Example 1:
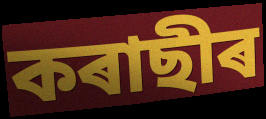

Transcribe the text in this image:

কৰাছীৰ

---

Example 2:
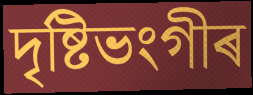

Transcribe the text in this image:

দৃষ্টিভংগীৰ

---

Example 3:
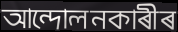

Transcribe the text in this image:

আন্দোলনকাৰীৰ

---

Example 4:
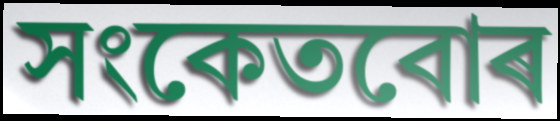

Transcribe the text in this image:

সংকেতবোৰ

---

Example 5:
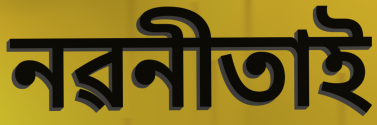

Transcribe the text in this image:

নৱনীতাই